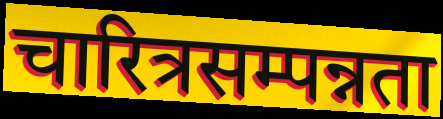
चारित्रसम्पन्नता